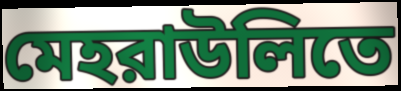
মেহরাউলিতে